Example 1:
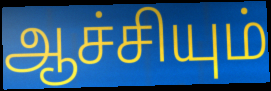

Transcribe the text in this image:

ஆச்சியும்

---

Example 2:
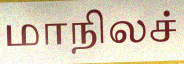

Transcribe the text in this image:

மாநிலச்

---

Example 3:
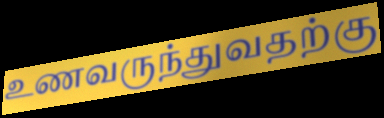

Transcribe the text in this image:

உணவருந்துவதற்கு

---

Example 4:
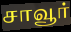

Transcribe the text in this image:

சாவூர்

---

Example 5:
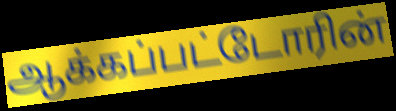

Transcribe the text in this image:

ஆக்கப்பட்டோரின்